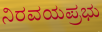
ನಿರವಯಪ್ರಭು